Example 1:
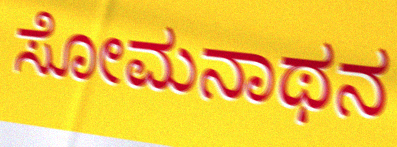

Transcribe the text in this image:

ಸೋಮನಾಥನ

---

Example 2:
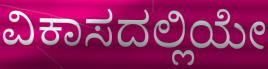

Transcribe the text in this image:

ವಿಕಾಸದಲ್ಲಿಯೇ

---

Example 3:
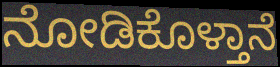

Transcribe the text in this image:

ನೋಡಿಕೊಳ್ತಾನೆ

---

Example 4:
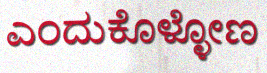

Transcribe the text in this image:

ಎಂದುಕೊಳ್ಳೋಣ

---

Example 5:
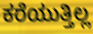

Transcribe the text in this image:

ಕರೆಯುತ್ತಿಲ್ಲ